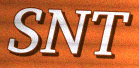
SNT